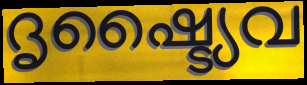
ദൃഷ്ട്യൈവ